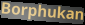
Borphukan